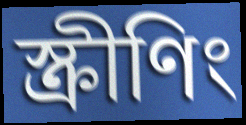
স্ক্ৰীণিং